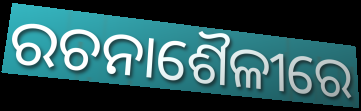
ରଚନାଶୈଳୀରେ